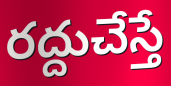
రద్దుచేస్తే